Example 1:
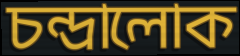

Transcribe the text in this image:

চন্দ্ৰালোক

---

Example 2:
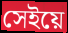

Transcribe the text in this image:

সেইয়ে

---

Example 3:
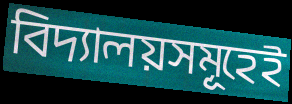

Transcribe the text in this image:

বিদ্যালয়সমূহেই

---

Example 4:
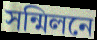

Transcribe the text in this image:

সন্মিলনে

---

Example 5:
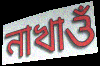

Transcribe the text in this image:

নাখাওঁ